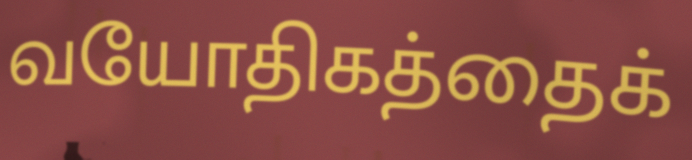
வயோதிகத்தைக்